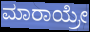
ಮಾರಾಯ್ರೇ